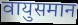
वायुसमान